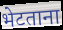
भेटताना